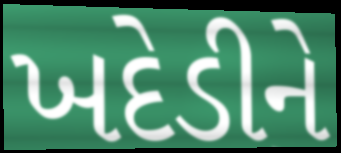
ખદેડીને